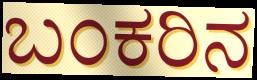
ಬಂಕರಿನ